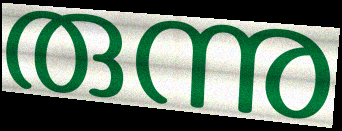
രുന്നു